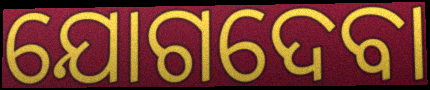
ଯୋଗଦେବା